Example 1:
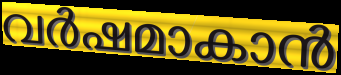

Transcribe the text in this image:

വർഷമാകാൻ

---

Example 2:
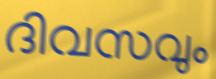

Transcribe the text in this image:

ദിവസവും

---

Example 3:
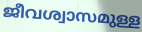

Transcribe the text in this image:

ജീവശ്വാസമുള്ള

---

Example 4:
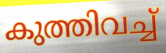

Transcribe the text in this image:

കുത്തിവച്ച്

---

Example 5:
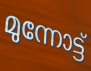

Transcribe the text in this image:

മുന്നോട്ട്